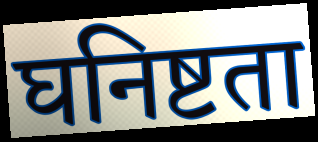
घनिष्टता